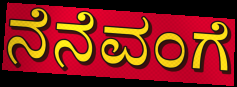
ನೆನೆವಂಗೆ